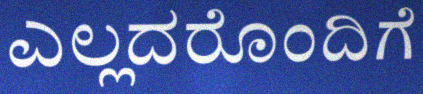
ಎಲ್ಲದರೊಂದಿಗೆ